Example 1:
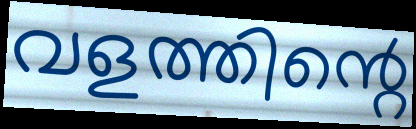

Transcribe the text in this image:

വളത്തിന്റെ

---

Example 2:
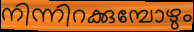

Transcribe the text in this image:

നിന്നിറക്കുമ്പോഴും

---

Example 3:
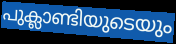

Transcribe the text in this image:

പുക്ലാണ്ടിയുടെയും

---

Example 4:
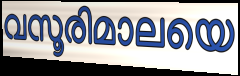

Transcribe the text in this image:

വസൂരിമാലയെ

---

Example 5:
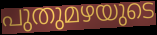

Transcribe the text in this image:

പുതുമഴയുടെ